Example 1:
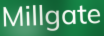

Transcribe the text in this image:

Millgate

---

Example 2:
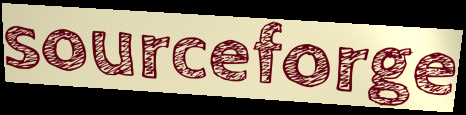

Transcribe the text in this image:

sourceforge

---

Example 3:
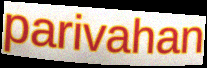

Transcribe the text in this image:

parivahan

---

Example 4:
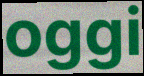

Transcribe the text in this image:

oggi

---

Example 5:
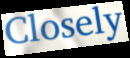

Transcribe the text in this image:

Closely